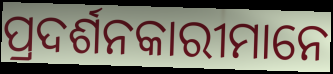
ପ୍ରଦର୍ଶନକାରୀମାନେ